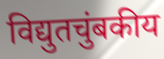
विद्युतचुंबकीय